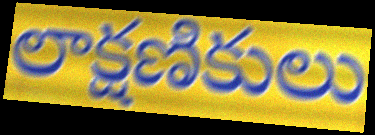
లాక్షణికులు